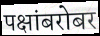
पक्षांबरोबर